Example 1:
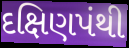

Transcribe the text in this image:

દક્ષિણપંથી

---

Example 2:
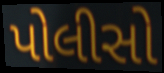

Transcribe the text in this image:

પોલીસો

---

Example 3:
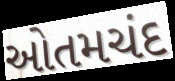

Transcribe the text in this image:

ઓતમચંદ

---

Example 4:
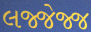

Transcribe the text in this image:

લજ્જેજ્જ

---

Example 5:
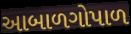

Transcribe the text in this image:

આબાળગોપાળ